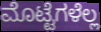
ಮೊಟ್ಟೆಗಳೆಲ್ಲ